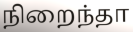
நிறைந்தா